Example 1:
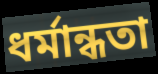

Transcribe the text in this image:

ধৰ্মান্ধতা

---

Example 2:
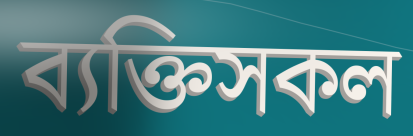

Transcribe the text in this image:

ব্যক্তিসকল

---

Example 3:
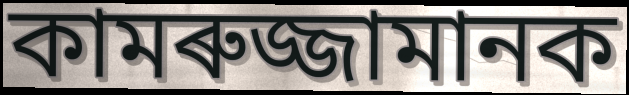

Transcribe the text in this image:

কামৰুজ্জামানক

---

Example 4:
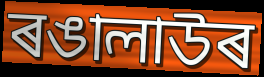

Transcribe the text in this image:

ৰঙালাউৰ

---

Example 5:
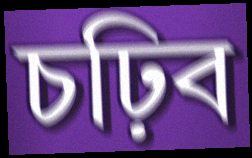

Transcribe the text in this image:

চঢ়িব